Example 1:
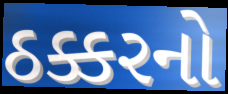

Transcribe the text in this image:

ઠક્કરનો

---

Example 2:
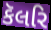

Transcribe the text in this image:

કૅલરિ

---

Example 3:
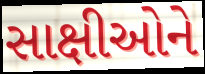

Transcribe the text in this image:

સાક્ષીઓને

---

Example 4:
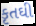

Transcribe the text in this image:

કૃતઘી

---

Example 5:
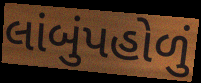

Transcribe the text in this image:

લાંબુંપહોળું